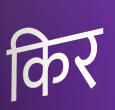
किर